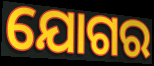
ଯୋଗର